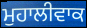
ਮੁਹਾਲੀਵਾਕ